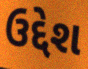
ઉદ્દેશ